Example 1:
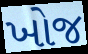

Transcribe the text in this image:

ખોજ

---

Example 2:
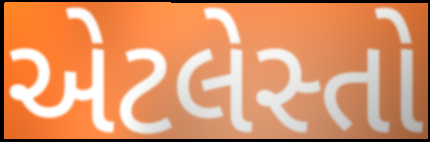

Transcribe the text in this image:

એટલેસ્તો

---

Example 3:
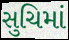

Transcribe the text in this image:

સુચિમાં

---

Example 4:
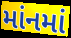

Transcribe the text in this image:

માંનમાં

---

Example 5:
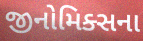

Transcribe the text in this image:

જીનોમિક્સના